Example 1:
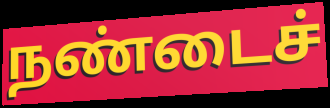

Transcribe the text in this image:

நண்டைச்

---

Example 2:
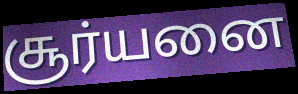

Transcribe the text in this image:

சூர்யனை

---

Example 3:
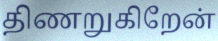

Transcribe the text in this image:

திணறுகிறேன்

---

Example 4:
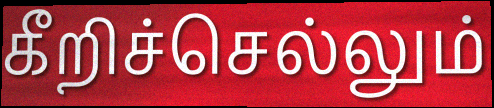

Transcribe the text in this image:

கீறிச்செல்லும்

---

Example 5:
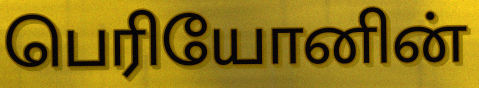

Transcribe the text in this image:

பெரியோனின்